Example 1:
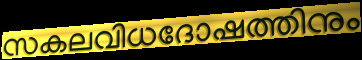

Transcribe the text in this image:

സകലവിധദോഷത്തിനും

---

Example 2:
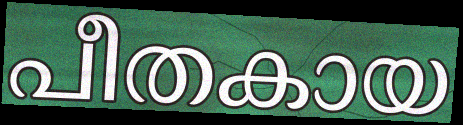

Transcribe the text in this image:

പീതകായ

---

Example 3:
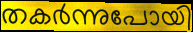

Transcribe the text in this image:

തകർന്നുപോയി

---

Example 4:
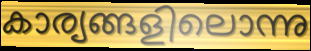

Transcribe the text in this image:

കാര്യങ്ങളിലൊന്നു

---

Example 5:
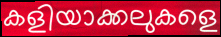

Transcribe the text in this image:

കളിയാക്കലുകളെ